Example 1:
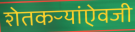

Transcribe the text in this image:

शेतकऱ्यांऐवजी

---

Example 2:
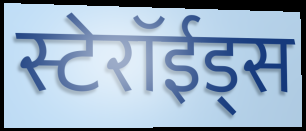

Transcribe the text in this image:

स्टेरॉईड्स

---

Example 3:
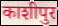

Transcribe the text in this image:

काशीपुर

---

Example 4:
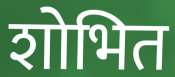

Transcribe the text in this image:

शोभित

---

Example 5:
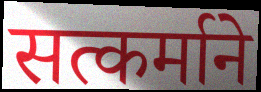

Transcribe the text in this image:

सत्कर्माने